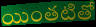
యింతటితో